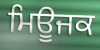
ਮਿਊਜਕ